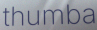
thumba